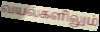
வயல்களிலும்